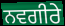
ਨਵਗੀਰੇ